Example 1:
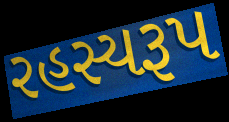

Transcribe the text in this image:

રહસ્યરૂપ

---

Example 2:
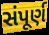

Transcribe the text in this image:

સંપૂર્ણ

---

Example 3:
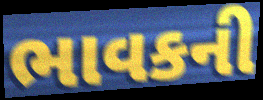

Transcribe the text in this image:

ભાવકની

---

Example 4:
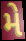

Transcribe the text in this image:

મે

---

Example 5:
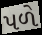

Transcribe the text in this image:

પળે